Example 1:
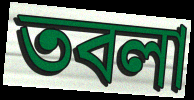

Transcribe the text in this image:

তবলা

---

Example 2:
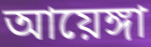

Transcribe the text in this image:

আয়েঙ্গা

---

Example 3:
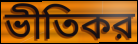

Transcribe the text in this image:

ভীতিকর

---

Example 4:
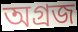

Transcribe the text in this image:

অগ্রজ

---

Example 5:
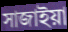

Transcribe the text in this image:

সাজাইয়া